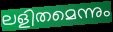
ലളിതമെന്നും